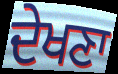
ਦੇਖਣਾ